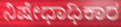
ನಿಷೇಧಾಧಿಕಾರ